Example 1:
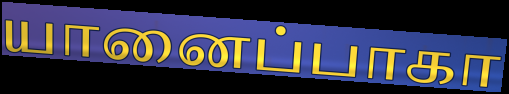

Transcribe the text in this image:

யானைப்பாகா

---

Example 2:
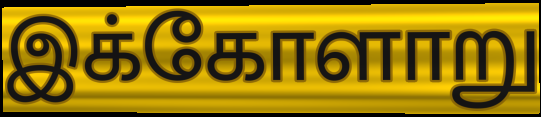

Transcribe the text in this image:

இக்கோளாறு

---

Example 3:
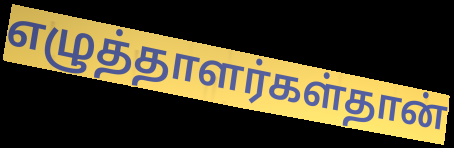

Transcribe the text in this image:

எழுத்தாளர்கள்தான்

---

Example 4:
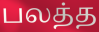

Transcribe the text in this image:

பலத்த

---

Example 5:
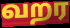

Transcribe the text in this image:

வறர